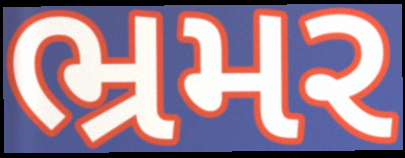
ભ્રમર